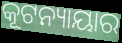
କୂଟନ୍ୟାୟାର